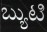
ಬ್ಯುಟಿ